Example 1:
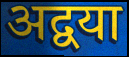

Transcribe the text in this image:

अद्वया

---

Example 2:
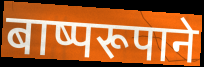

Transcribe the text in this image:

बाष्परूपाने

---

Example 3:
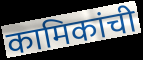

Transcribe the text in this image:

कामिकांची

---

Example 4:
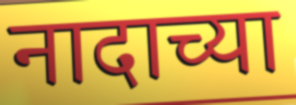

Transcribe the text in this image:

नादाच्या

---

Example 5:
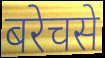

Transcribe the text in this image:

बरेचसे